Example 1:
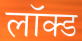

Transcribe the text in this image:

लॉक्ड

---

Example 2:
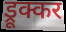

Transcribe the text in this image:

ड्रूक्कर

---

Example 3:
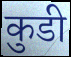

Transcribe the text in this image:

कुडी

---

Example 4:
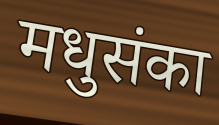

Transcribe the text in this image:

मधुसंका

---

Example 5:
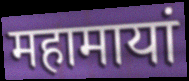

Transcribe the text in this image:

महामायां